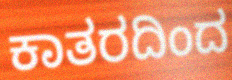
ಕಾತರದಿಂದ